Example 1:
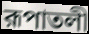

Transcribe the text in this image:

রূপাতলী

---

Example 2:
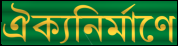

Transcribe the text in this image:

ঐক্যনির্মাণে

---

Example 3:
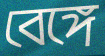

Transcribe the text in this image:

বেঙ্গে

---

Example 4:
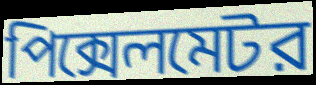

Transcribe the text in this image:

পিক্সেলমেটর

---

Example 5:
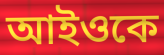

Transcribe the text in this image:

আইওকে